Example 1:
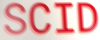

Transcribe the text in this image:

SCID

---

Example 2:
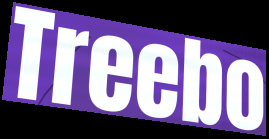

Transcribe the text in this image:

Treebo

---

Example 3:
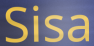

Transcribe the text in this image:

Sisa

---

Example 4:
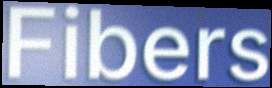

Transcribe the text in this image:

Fibers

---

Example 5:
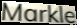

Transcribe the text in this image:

Markle